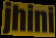
jhini